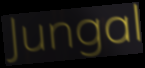
Jungal